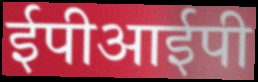
ईपीआईपी